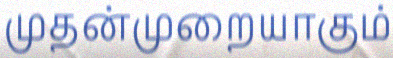
முதன்முறையாகும்